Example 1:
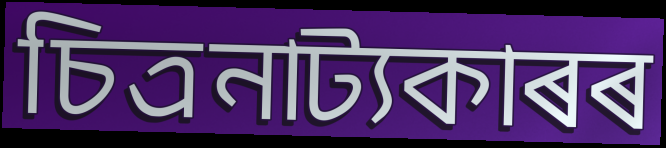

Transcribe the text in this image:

চিত্ৰনাট্যকাৰৰ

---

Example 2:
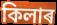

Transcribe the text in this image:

কিলাৰ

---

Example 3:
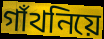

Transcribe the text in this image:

গাঁথনিয়ে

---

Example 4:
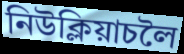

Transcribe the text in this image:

নিউক্লিয়াচলৈ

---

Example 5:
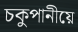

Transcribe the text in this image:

চকুপানীয়ে